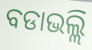
ବଡାଭଲ୍ଲି